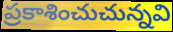
ప్రకాశించుచున్నవి